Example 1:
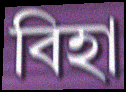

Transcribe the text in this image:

বিহা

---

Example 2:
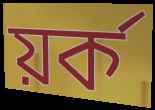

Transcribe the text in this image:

য়ৰ্ক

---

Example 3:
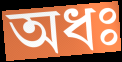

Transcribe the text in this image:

অধঃ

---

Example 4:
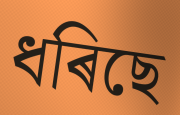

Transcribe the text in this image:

ধৰিছে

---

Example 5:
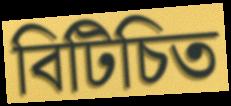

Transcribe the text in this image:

বিটিচিত